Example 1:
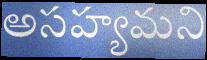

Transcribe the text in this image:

అసహ్యమని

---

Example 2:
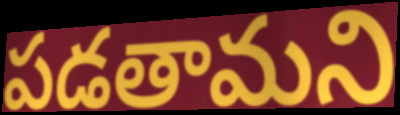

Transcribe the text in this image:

పడతామని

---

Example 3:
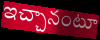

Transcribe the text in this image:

ఇచ్చానంటూ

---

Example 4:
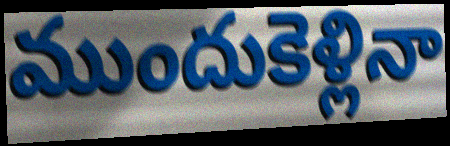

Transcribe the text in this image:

ముందుకెళ్లినా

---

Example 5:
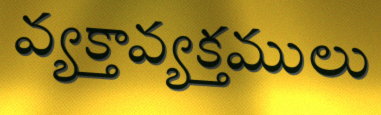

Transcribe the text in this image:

వ్యక్తావ్యక్తములు